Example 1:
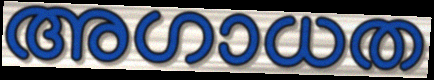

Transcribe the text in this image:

അഗാധത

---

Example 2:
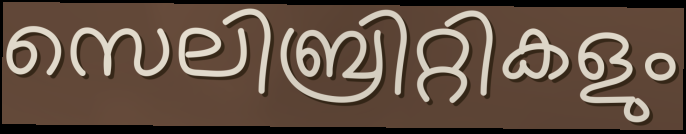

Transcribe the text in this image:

സെലിബ്രിറ്റികളും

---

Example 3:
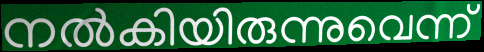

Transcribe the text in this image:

നൽകിയിരുന്നുവെന്ന്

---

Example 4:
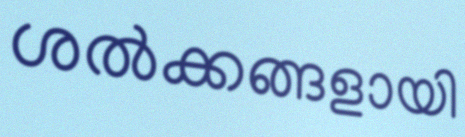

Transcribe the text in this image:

ശൽക്കങ്ങളായി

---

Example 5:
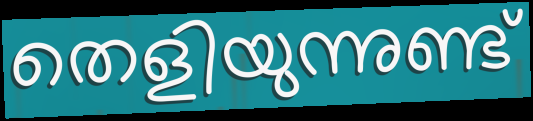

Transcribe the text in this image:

തെളിയുന്നുണ്ട്